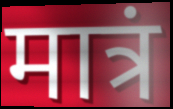
मात्रं